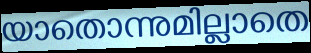
യാതൊന്നുമില്ലാതെ